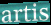
artis